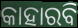
କାହାରବି